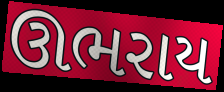
ઊભરાય